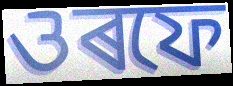
ওৰফে